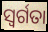
ସ୍ବର୍ଗତା